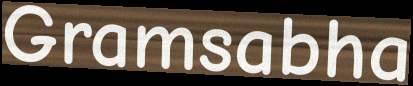
Gramsabha